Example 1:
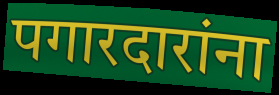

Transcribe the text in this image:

पगारदारांना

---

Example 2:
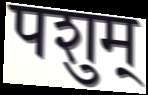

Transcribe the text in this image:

पशुम्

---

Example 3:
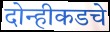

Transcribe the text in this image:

दोन्हीकडचे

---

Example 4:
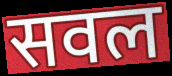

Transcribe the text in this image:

सवल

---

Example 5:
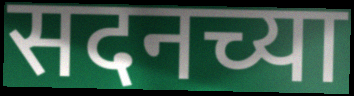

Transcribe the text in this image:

सदनच्या